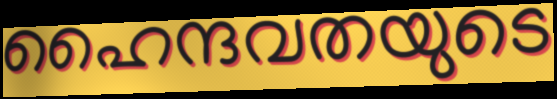
ഹൈന്ദവതയുടെ